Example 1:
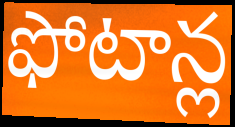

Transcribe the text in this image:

ఫోటాన్ల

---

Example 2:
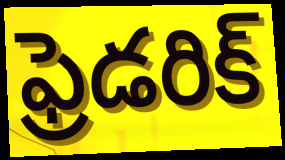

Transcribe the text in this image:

ఫ్రెడరిక్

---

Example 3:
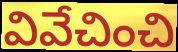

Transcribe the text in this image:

వివేచించి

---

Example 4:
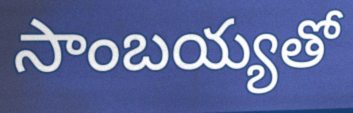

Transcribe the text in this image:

సాంబయ్యతో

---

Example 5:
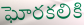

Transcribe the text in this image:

ఘోరకలికి